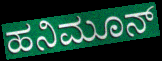
ಹನಿಮೂನ್